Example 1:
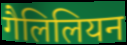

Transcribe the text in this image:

गैलिलियन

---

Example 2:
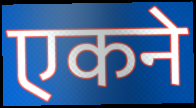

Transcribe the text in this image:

एकने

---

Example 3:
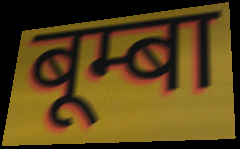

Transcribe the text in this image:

बूम्बा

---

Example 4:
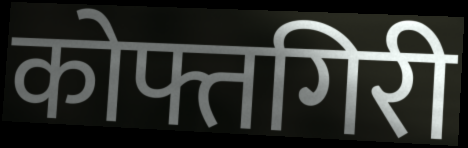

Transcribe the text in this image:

कोफ्तगिरी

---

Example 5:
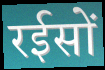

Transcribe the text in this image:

रईसों